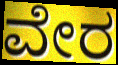
ವೇರ